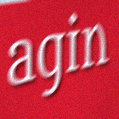
agin